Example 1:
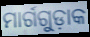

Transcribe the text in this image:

ମାର୍ଗଗୁଡ଼ାକ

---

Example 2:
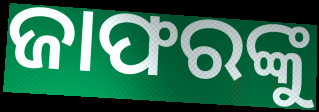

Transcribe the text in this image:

ଜାଫରଙ୍କୁ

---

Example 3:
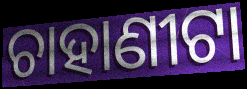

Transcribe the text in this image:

ଚାହାଣୀଟା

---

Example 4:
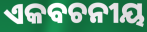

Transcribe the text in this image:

ଏକବଚନୀୟ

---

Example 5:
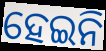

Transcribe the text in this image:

ହେଇନି